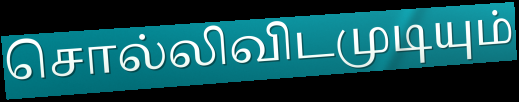
சொல்லிவிடமுடியும்